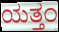
ಯತ್ತಂ